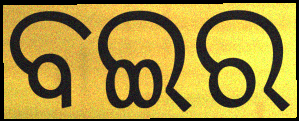
ବଇର